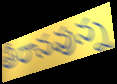
తీరానవున్న